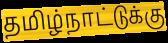
தமிழ்நாட்டுக்கு